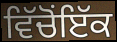
ਵਿੱਚੋਂਇੱਕ